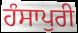
ਹੰਸਾਪੁਰੀ